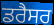
ਡਰੈਸਰ